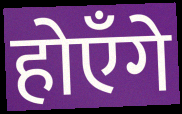
होएँगे